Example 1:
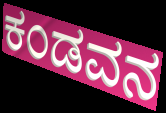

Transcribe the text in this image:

ಕಂಡವನ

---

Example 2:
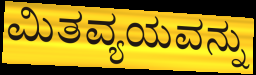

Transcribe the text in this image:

ಮಿತವ್ಯಯವನ್ನು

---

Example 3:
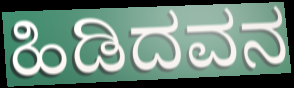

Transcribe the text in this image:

ಹಿಡಿದವನ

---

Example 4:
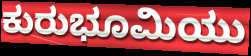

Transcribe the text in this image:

ಕುರುಭೂಮಿಯು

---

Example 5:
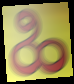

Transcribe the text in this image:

ಹಿ